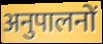
अनुपालनों